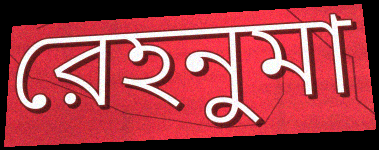
রেহনুমা